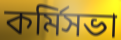
কর্মিসভা